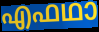
എഫഥാ